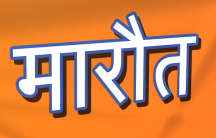
मारौत